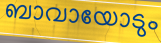
ബാവായോടും